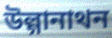
উল্গানাথন